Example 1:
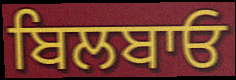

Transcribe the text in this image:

ਬਿਲਬਾਓ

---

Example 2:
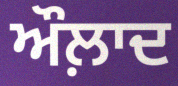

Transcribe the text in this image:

ਔਲ਼ਾਦ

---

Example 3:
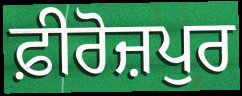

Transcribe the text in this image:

ਫ਼ੀਰੋਜ਼ਪੁਰ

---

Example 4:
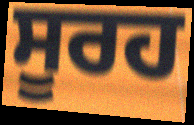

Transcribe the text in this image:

ਸੂਰਹ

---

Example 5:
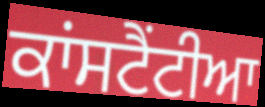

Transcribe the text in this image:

ਕਾਂਸਟੈਂਟੀਆ